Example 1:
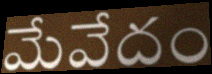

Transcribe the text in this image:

మేవేదం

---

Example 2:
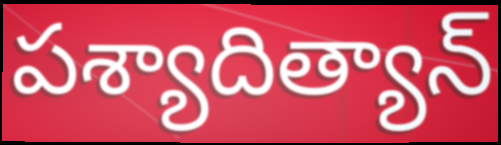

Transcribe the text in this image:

పశ్యాదిత్యాన్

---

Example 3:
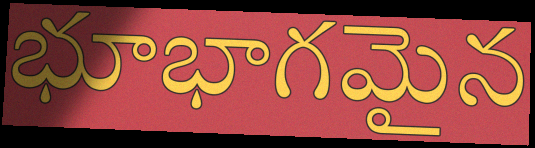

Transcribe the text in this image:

భూభాగమైన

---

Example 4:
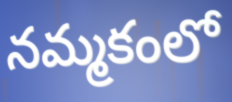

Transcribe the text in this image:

నమ్మకంలో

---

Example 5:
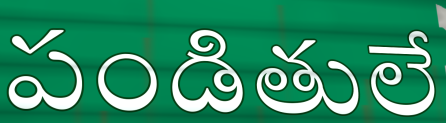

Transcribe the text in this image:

పండితులే